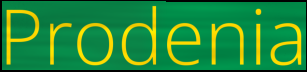
Prodenia